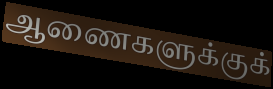
ஆணைகளுக்குக்